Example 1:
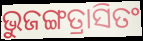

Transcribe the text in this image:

ଭୁଜଙ୍ଗତ୍ରାସିତଂ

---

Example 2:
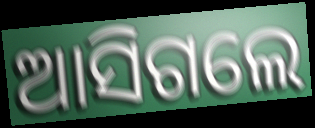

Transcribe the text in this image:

ଆସିଗଲେ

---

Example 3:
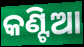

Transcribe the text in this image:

କଣ୍ଟିଆ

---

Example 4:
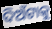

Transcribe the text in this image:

ଦିଅଁଟାକୁ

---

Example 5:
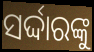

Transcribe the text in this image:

ସର୍ଦ୍ଦାରଙ୍କୁ